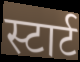
स्टार्ट